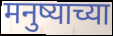
मनुष्याच्या